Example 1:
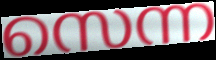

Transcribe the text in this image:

സെന്ന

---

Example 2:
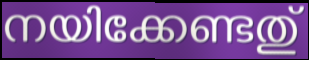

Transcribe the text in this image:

നയിക്കേണ്ടതു്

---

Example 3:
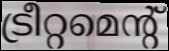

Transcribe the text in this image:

ട്രീറ്റമെന്റ്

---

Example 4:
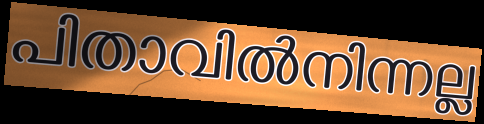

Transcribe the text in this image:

പിതാവിൽനിന്നല്ല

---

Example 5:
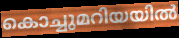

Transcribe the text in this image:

കൊച്ചുമറിയയിൽ